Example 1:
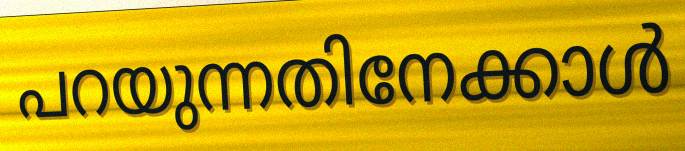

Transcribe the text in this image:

പറയുന്നതിനേക്കാൾ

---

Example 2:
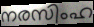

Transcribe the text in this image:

നരസിംഹ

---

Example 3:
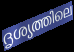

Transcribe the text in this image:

ദൃശ്യത്തിലെ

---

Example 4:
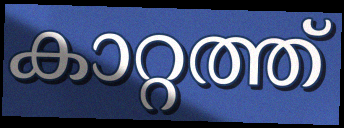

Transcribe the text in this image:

കാറ്റത്ത്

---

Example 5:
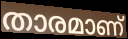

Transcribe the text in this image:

താരമാണ്